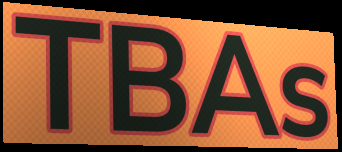
TBAs